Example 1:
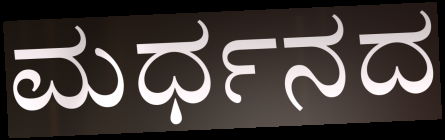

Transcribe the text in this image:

ಮರ್ಧನದ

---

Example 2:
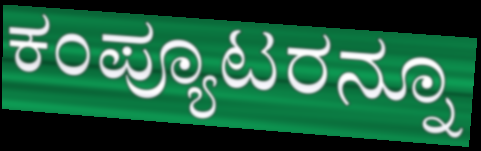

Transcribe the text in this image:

ಕಂಪ್ಯೂಟರನ್ನೂ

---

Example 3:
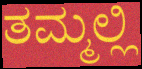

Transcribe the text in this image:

ತಮ್ಮಲ್ಲಿ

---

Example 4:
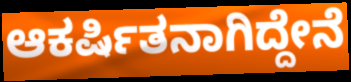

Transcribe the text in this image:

ಆಕರ್ಷಿತನಾಗಿದ್ದೇನೆ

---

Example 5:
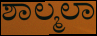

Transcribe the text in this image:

ಶಾಲ್ಮಲಾ